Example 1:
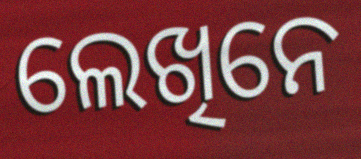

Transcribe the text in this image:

ଲେଖିନେ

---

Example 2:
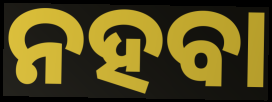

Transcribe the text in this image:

ନହବା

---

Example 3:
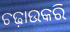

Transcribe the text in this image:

ଚଢ଼ାଉକରି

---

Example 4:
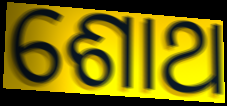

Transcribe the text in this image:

ଶୋଥ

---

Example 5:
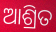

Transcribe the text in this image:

ଆଶ୍ରିତ